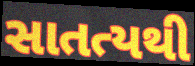
સાતત્યથી